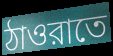
ঠাওরাতে